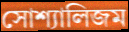
সোশ্যালিজম